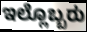
ಇಲ್ಲೊಬ್ಬರು